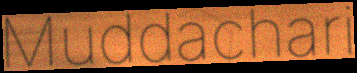
Muddachari